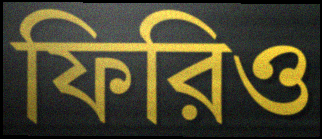
ফিরিও